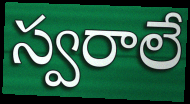
స్వరాలే